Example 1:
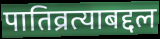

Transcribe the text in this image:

पातिव्रत्याबद्दल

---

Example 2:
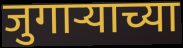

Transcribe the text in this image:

जुगाऱ्याच्या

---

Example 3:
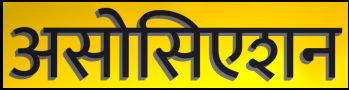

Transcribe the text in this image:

असोसिएशन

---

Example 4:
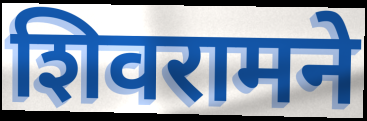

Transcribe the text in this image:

शिवरामने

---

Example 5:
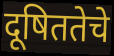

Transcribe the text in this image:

दूषिततेचे